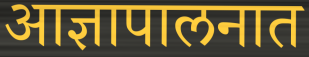
आज्ञापालनात